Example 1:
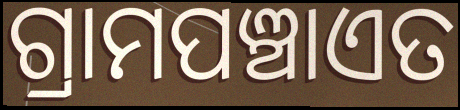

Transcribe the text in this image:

ଗ୍ରାମପଞ୍ଚାଏତ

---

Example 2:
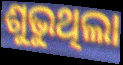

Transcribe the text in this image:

ଶୁଭୁଥିଲା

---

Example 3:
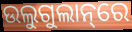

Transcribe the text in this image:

ଉଲୁଗୁଲାନ୍‌ରେ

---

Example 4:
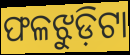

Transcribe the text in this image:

ଫଳଝୁଡ଼ିଟା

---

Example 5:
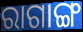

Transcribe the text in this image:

ରାଗାଙ୍ଗ